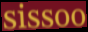
sissoo